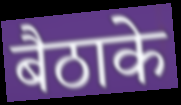
बैठाके